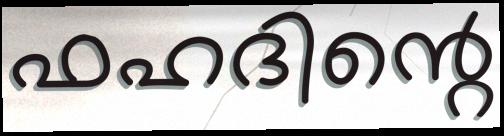
ഫഹദിന്റെ